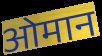
ओमान